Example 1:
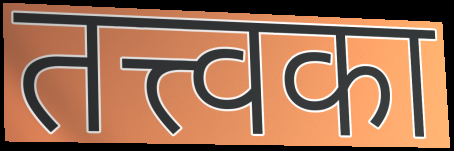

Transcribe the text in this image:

तत्त्वका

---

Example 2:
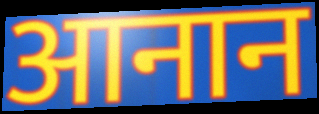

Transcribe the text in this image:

आनान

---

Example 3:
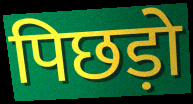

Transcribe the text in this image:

पिछड़ो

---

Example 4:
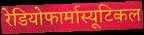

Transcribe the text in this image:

रेडियोफार्मास्यूटिकल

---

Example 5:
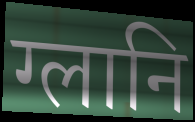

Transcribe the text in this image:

ग्लानि